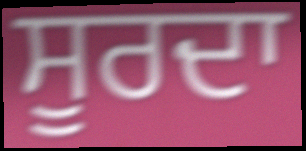
ਸੂਰਦਾ